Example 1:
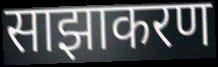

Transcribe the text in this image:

साझाकरण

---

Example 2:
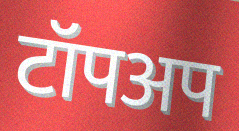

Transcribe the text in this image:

टॉपअप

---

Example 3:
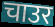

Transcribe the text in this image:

चाउर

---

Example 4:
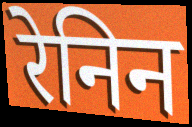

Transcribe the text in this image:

रेनिन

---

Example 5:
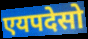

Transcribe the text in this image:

एयपदेसो